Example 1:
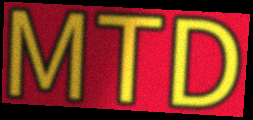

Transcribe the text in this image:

MTD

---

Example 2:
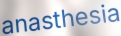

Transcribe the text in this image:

anasthesia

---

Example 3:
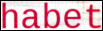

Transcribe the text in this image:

habet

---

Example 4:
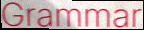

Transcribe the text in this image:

Grammar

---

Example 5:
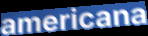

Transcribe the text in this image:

americana